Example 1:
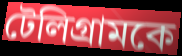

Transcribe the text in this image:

টেলিগ্রামকে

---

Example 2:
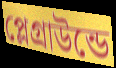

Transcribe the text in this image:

প্লেগ্রাউন্ডে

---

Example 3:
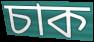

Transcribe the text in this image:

চাক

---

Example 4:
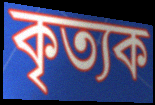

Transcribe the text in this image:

কৃত্যক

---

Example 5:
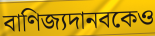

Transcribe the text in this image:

বাণিজ্যদানবকেও